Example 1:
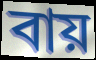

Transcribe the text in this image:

বায়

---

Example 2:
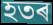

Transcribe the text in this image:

হতৰ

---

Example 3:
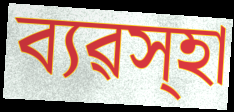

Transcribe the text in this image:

ব্যৱস্হা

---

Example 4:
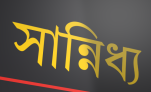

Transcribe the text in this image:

সান্নিধ্য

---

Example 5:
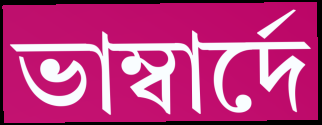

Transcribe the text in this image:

ভাম্বাৰ্দে